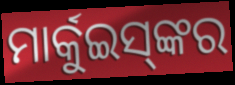
ମାର୍କୁଇସ୍‍ଙ୍କର